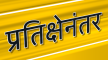
प्रतिक्षेनंतर